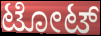
ಟೋಟ್